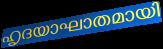
ഹൃദയാഘാതമായി